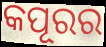
କପୂରର